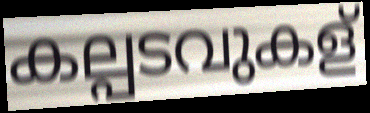
കല്പടവുകള്